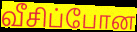
வீசிப்போன